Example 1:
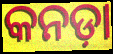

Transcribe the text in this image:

କନଡ଼ା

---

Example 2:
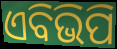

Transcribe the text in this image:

ଏବିଭିପି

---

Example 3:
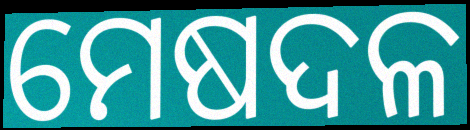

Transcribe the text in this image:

ମେଷଦଳ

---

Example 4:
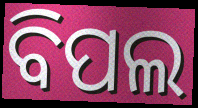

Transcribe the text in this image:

ବିପଲ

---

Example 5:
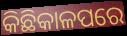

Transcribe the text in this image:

କିଛିକାଳପରେ